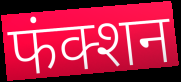
फंक्शन